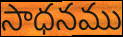
సాధనము